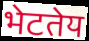
भेटतेय